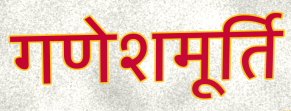
गणेशमूर्ति